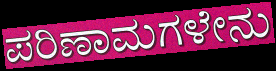
ಪರಿಣಾಮಗಳೇನು